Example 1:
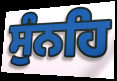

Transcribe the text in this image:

ਸੁੰਨਹਿ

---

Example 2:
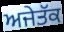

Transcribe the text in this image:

ਅਜੇਤੱਕ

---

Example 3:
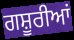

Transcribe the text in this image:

ਗਸ਼ੂਰੀਆਂ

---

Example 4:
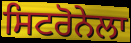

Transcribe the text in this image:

ਸਿਟਰੋਨੇਲਾ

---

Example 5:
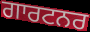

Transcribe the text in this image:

ਗਾਰਟਨਰ